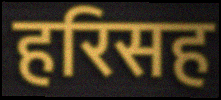
हरिसह